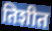
तिशीत